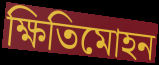
ক্ষিতিমোহন